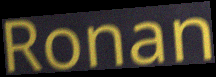
Ronan